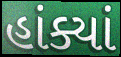
હાંક્યાં